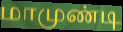
மாமுண்டி